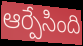
ఆర్పేసింది